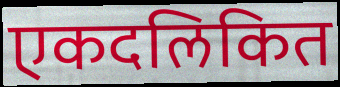
एकदलिकित